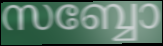
സബ്ബോ